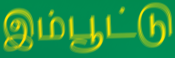
இம்பூட்டு